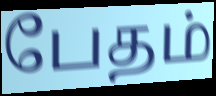
பேதம்